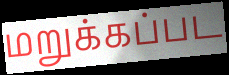
மறுக்கப்பட